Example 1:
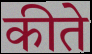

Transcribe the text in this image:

कीते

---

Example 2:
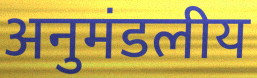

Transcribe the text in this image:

अनुमंडलीय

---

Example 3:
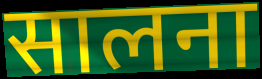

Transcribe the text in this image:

सालना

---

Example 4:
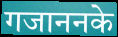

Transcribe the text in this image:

गजाननके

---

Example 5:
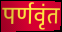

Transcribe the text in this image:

पर्णवृंत